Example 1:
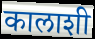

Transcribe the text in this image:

कालाशी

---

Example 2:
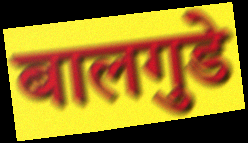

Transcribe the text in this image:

बालगुडे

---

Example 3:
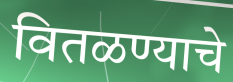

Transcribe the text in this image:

वितळण्याचे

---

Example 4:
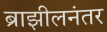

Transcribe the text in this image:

ब्राझीलनंतर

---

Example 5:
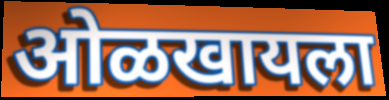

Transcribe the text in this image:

ओळखायला